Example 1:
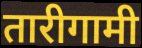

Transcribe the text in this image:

तारीगामी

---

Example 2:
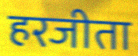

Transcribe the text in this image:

हरजीता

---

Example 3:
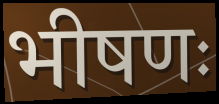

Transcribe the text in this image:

भीषणः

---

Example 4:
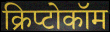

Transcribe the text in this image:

क्रिप्टोकॉम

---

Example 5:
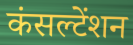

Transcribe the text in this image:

कंसल्टेंशन